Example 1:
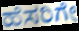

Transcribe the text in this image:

ಹೆಸರಿಗೇ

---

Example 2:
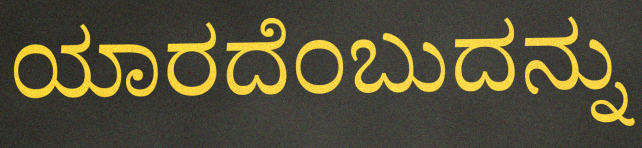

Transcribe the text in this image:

ಯಾರದೆಂಬುದನ್ನು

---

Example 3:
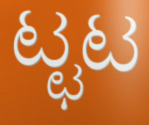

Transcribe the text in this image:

ಟ್ಟಟ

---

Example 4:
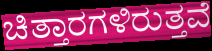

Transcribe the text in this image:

ಚಿತ್ತಾರಗಳಿರುತ್ತವೆ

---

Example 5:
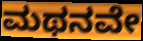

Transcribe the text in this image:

ಮಥನವೇ